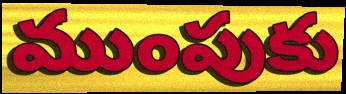
ముంపుకు